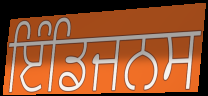
ਇੰਡਿਜਨਸ